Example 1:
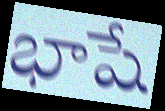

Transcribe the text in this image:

భాషే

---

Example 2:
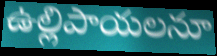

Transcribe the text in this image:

ఉల్లిపాయలనూ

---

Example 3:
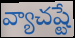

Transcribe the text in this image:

వ్యాచష్టే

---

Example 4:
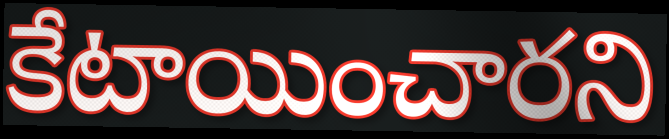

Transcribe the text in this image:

కేటాయించారని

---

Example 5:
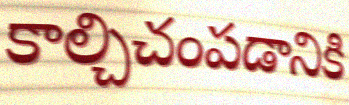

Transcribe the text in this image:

కాల్చిచంపడానికి